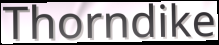
Thorndike